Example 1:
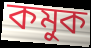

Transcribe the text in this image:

কমুক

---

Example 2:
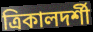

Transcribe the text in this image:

ত্রিকালদর্শী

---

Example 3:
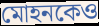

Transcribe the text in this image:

মোহনকেও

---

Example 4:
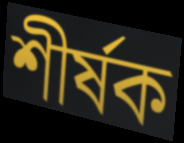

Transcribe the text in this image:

শীর্ষক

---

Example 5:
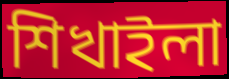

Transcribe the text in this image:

শিখাইলা